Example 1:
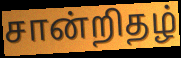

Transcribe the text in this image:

சான்றிதழ்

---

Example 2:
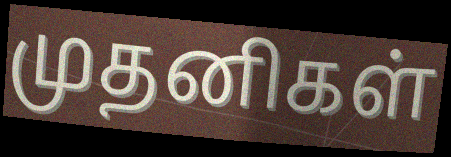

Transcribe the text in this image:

முதனிகள்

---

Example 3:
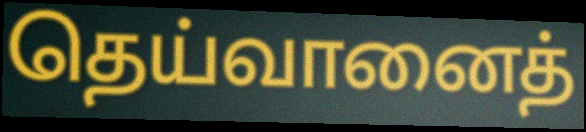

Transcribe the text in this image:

தெய்வானைத்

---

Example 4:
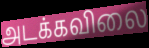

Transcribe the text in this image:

அடக்கவிலை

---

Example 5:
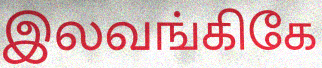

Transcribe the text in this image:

இலவங்கிகே